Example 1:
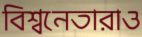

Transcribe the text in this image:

বিশ্বনেতারাও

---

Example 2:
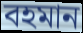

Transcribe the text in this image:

বহমান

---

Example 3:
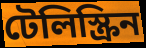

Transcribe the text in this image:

টেলিস্ক্রিন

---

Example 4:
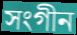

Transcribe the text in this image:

সংগীন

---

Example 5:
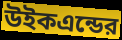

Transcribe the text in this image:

উইকএন্ডের